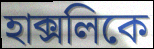
হাক্সলিকে